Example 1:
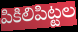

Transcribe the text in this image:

పికిలిపిట్టల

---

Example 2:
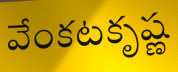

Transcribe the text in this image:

వేంకటకృష్ణ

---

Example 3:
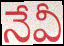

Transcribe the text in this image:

నేవీ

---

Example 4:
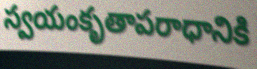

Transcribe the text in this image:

స్వయంకృతాపరాధానికి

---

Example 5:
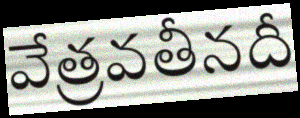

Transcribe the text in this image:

వేత్రవతీనదీ